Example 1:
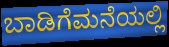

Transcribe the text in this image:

ಬಾಡಿಗೆಮನೆಯಲ್ಲಿ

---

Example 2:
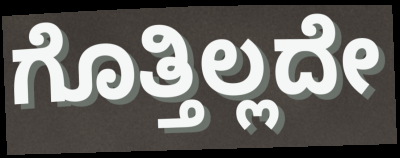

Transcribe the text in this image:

ಗೊತ್ತಿಲ್ಲದೇ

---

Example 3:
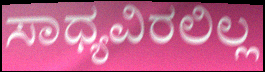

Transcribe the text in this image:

ಸಾಧ್ಯವಿರಲಿಲ್ಲ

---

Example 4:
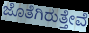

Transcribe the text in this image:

ಜೊತೆಗಿರುತ್ತೇವೆ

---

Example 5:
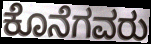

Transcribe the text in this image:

ಕೊನೆಗವರು